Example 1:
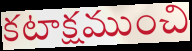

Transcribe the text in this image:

కటాక్షముంచి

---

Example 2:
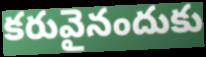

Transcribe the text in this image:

కరువైనందుకు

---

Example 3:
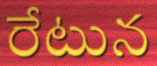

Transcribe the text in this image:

రేటున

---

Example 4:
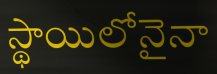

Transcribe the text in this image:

స్థాయిలోనైనా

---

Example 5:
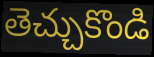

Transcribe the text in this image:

తెచ్చుకొండి